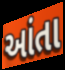
આંતા